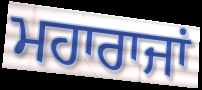
ਮਹਾਰਾਜਾਂ